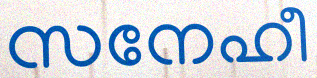
സനേഹീ